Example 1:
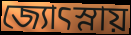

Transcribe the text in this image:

জ্যোৎস্নায়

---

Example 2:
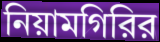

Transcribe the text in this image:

নিয়ামগিরির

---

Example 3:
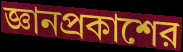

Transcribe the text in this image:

জ্ঞানপ্রকাশের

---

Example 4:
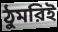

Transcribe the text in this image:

ঠুমরিই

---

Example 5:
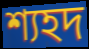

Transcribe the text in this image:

শ্যহদ